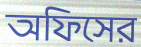
অফিসের